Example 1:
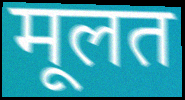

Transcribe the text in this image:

मूलत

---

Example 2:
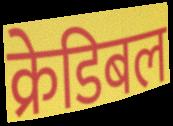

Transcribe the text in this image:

क्रेडिबल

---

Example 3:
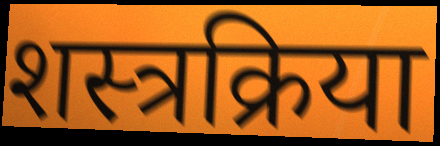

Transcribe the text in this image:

शस्त्रक्रिया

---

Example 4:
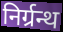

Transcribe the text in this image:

निर्ग्रन्थ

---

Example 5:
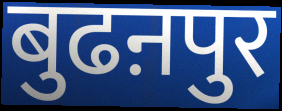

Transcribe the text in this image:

बुढऩपुर